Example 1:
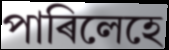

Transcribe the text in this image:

পাৰিলেহে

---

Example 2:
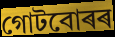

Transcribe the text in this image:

গোটবোৰৰ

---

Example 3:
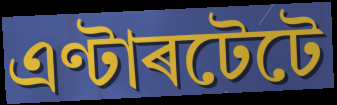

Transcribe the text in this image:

এণ্টাৰটেটে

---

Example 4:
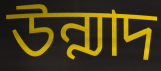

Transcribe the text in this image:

উন্মাদ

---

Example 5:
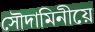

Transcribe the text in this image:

সৌদামিনীয়ে